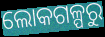
ଲୋକଗଳ୍ପରୁ